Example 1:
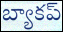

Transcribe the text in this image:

బ్యాకప్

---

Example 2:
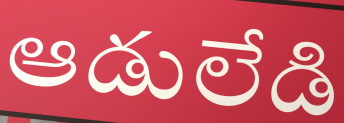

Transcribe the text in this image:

ఆడులేడి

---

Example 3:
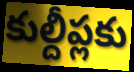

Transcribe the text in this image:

కుల్దీప్లకు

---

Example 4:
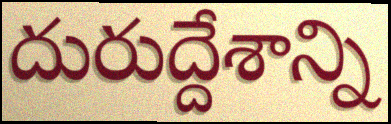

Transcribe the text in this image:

దురుద్దేశాన్ని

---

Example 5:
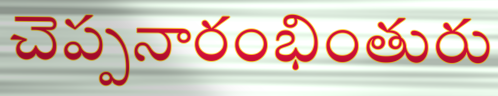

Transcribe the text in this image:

చెప్పనారంభింతురు